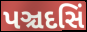
પઞ્ચદસિં